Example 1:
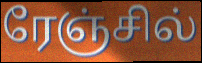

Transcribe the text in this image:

ரேஞ்சில்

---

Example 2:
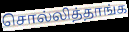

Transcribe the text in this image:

சொல்லித்தாங்க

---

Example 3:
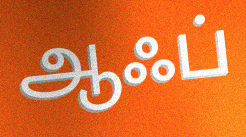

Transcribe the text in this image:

ஆஃப்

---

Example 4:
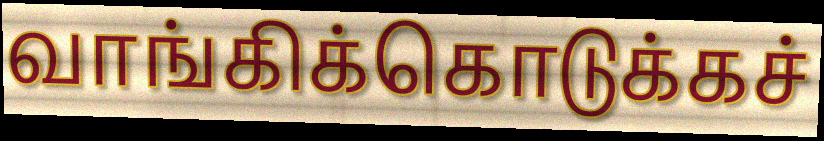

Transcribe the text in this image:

வாங்கிக்கொடுக்கச்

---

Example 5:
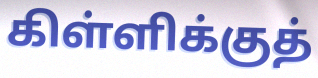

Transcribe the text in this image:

கிள்ளிக்குத்